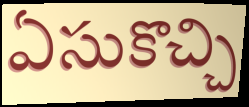
ఏసుకొచ్చి